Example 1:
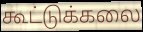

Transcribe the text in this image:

கூட்டுக்கலை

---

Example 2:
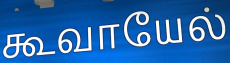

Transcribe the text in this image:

கூவாயேல்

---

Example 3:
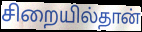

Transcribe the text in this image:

சிறையில்தான்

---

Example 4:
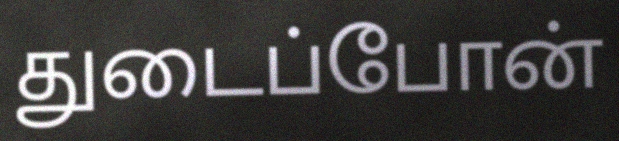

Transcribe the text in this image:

துடைப்போன்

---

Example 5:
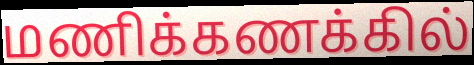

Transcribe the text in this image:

மணிக்கணக்கில்